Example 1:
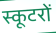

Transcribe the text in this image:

स्कूटरों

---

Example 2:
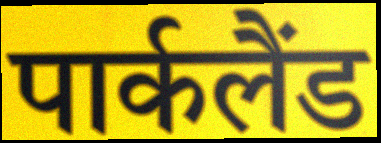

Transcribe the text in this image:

पार्कलैंड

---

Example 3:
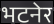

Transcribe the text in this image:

भटनेर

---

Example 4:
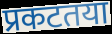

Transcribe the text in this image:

प्रकटतया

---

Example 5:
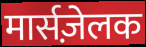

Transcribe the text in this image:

मार्सज़ेलक